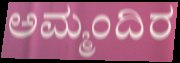
ಅಮ್ಮಂದಿರ